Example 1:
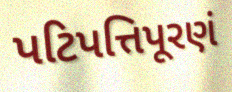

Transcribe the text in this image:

પટિપત્તિપૂરણં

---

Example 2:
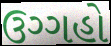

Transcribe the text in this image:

ઉગ્ગહો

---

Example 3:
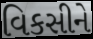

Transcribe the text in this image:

વિકસીને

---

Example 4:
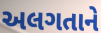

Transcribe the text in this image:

અલગતાને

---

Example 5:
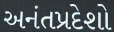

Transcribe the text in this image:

અનંતપ્રદેશો